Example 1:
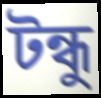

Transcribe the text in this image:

টন্ধু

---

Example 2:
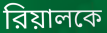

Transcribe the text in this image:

রিয়ালকে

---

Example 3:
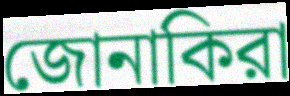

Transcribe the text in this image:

জোনাকিরা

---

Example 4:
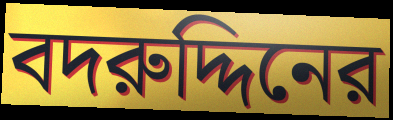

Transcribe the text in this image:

বদরুদ্দিনের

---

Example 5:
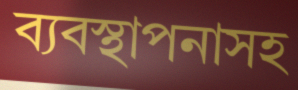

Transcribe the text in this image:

ব্যবস্থাপনাসহ